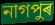
নাগপুৰ